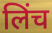
लिंच